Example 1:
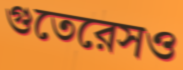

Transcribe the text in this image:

গুতেরেসও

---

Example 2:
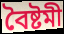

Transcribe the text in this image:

বৈষ্টমী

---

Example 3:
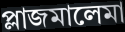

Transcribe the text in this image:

প্লাজমালেমা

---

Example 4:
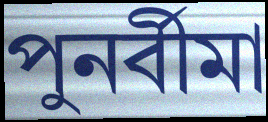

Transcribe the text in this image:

পুনর্বীমা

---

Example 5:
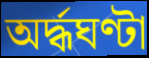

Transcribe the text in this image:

অর্দ্ধঘণ্টা